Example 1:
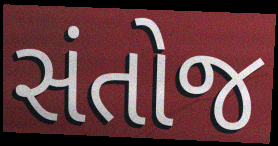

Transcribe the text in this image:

સંતોજ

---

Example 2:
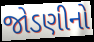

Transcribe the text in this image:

જોડણીનો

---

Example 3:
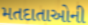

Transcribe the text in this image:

મતદાતાઓની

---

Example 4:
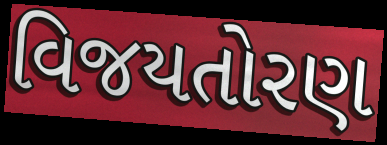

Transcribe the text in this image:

વિજયતોરણ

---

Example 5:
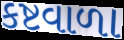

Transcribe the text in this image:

કષ્ટવાળા